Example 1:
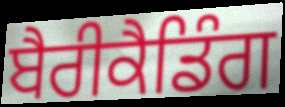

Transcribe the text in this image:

ਬੈਰੀਕੈਡਿੰਗ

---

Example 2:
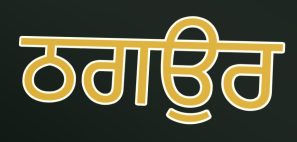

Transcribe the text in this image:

ਠਗਉਰ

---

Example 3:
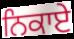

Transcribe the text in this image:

ਨਿਕਾਏ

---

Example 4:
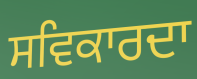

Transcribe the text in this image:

ਸਵਿਕਾਰਦਾ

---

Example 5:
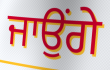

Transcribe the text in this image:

ਜਾਉਂਗੇ